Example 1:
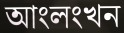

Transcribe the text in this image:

আংলংখন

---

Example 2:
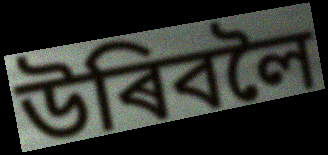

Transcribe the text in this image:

উৰিবলৈ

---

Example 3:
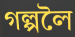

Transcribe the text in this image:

গল্পলৈ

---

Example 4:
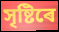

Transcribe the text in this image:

সৃষ্টিৰে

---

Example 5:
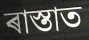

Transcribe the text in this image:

ৰাস্তাত